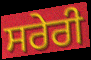
ਸਰੇਰੀ